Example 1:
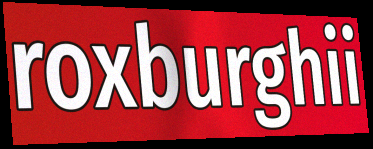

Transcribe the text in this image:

roxburghii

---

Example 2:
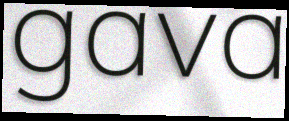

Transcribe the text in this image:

gava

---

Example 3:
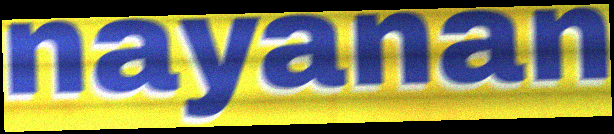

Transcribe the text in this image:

nayanan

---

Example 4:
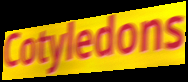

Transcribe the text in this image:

Cotyledons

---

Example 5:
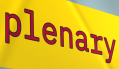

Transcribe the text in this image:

plenary